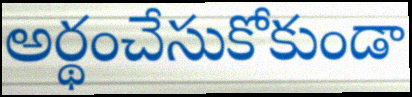
అర్థంచేసుకోకుండా